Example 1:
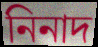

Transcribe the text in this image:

নিনাদ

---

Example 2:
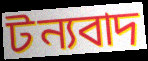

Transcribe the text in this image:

টন্যবাদ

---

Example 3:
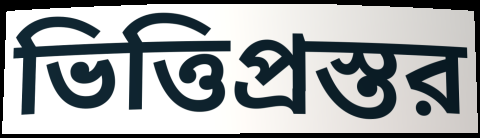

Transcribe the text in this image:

ভিত্তিপ্রস্তর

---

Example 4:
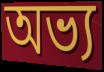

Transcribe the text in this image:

অভ্য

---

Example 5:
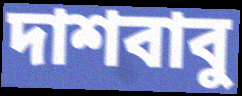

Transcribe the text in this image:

দাশবাবু